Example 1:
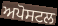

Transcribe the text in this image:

ਅਪੋਸਟਲ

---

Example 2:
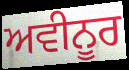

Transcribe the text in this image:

ਅਵੀਨੂਰ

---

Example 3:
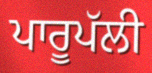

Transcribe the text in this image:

ਪਾਰੂਪੱਲੀ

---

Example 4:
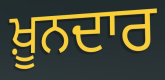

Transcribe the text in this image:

ਖ਼ੂਨਦਾਰ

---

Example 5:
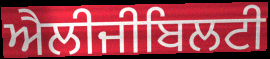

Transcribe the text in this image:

ਐਲੀਜੀਬਿਲਟੀ